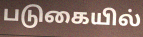
படுகையில்